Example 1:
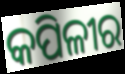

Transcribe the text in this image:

କପିଳୀର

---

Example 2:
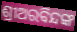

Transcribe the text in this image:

ଶ୍ରୀଅରବିନ୍ଦଙ୍କ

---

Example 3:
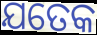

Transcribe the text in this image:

ଯତେକ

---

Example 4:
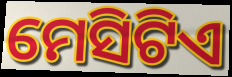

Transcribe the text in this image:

ମେସିଟିଏ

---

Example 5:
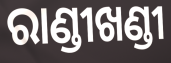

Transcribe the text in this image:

ରାଣ୍ଡୀଖଣ୍ଡୀ